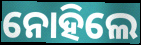
ନୋହିଲେ